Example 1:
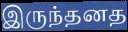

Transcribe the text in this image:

இருந்தனத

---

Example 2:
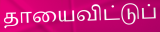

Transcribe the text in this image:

தாயைவிட்டுப்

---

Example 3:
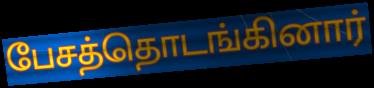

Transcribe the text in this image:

பேசத்தொடங்கினார்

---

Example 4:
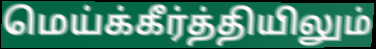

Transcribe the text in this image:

மெய்க்கீர்த்தியிலும்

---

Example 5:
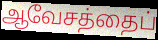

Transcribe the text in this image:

ஆவேசத்தைப்